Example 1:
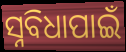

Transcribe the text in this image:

ସ୍ନବିଧାପାଇଁ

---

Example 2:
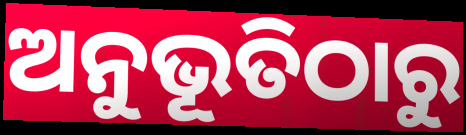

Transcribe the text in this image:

ଅନୁଭୂତିଠାରୁ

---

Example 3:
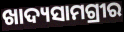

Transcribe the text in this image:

ଖାଦ୍ୟସାମଗ୍ରୀର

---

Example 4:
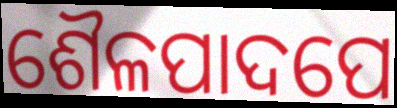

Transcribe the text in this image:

ଶୈଳପାଦପେ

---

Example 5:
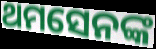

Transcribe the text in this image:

ଥମସେନଙ୍କ